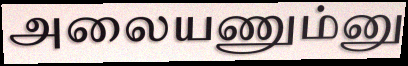
அலையணும்னு